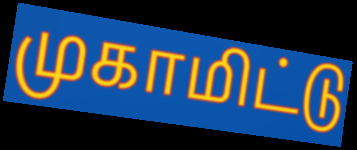
முகாமிட்டு